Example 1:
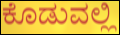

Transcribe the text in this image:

ಕೊಡುವಲ್ಲಿ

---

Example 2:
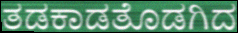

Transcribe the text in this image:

ತಡಕಾಡತೊಡಗಿದ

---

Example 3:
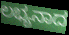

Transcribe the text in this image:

ಲಭ್ಯನಾದ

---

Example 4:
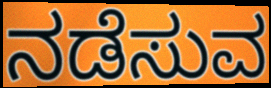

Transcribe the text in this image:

ನಡೆಸುವ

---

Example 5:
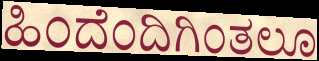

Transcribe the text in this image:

ಹಿಂದೆಂದಿಗಿಂತಲೂ